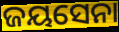
ଜୟସେନା